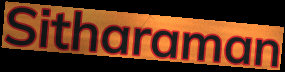
Sitharaman